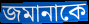
জমানাকে